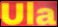
Ula